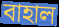
বাহাল